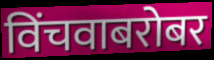
विंचवाबरोबर